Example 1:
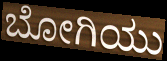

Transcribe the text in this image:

ಬೋಗಿಯು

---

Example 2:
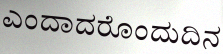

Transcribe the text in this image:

ಎಂದಾದರೊಂದುದಿನ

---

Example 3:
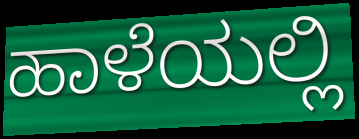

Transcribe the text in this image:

ಹಾಳೆಯಲ್ಲಿ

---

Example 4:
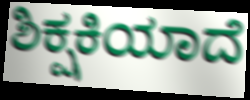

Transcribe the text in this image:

ಶಿಕ್ಷಕಿಯಾದೆ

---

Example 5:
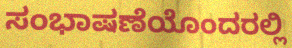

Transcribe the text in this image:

ಸಂಭಾಷಣೆಯೊಂದರಲ್ಲಿ